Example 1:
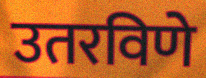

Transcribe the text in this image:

उतरविणे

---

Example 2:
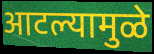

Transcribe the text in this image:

आटल्यामुळे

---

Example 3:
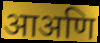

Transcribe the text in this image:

आअणि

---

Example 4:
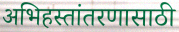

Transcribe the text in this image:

अभिहस्तांतरणासाठी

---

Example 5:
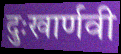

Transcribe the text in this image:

दुःखार्णवी